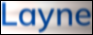
Layne